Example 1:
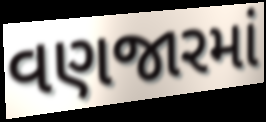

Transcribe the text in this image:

વણજારમાં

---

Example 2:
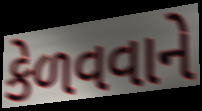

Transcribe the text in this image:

કેળવવાને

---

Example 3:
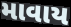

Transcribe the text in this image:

માવાય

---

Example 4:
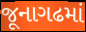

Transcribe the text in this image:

જૂનાગઢમાં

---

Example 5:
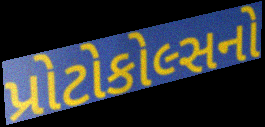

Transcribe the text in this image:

પ્રોટોકોલ્સનો